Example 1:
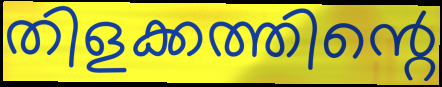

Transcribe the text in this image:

തിളക്കത്തിന്റെ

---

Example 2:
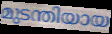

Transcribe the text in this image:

മുടന്തിയായ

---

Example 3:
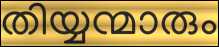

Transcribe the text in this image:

തിയ്യന്മാരും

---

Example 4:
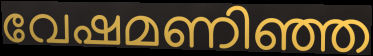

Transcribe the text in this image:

വേഷമണിഞ്ഞ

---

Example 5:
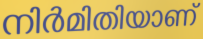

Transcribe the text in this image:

നിർമിതിയാണ്